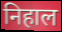
निहाल